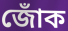
জোঁক